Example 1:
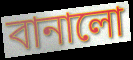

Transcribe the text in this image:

বানালো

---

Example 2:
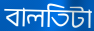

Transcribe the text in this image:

বালতিটা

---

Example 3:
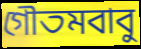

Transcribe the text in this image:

গৌতমবাবু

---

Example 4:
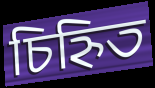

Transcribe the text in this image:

চিহ্নিত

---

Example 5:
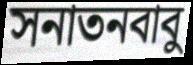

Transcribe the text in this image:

সনাতনবাবু